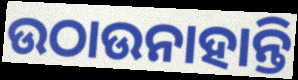
ଉଠାଉନାହାନ୍ତି